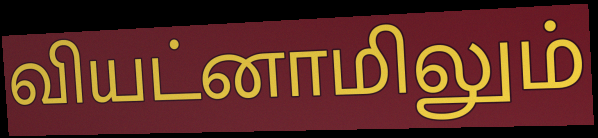
வியட்னாமிலும்